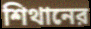
শিথানের